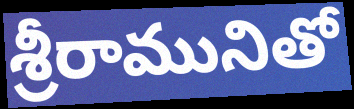
శ్రీరామునితో